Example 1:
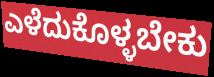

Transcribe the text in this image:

ಎಳೆದುಕೊಳ್ಳಬೇಕು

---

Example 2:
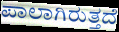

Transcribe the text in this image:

ಪಾಲಾಗಿರುತ್ತದೆ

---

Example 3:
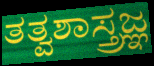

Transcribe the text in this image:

ತತ್ವಶಾಸ್ತ್ರಜ್ಞ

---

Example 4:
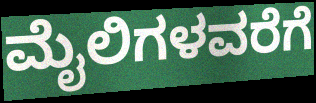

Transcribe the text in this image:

ಮೈಲಿಗಳವರೆಗೆ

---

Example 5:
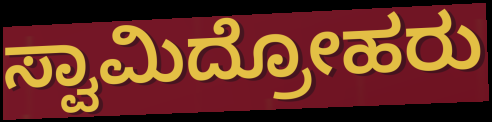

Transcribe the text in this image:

ಸ್ವಾಮಿದ್ರೋಹರು